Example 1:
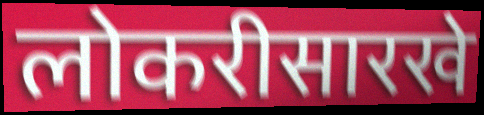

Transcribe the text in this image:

लोकरीसारखे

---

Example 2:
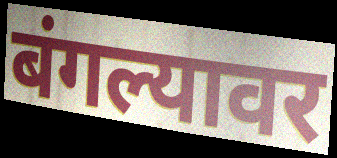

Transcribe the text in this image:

बंगल्यावर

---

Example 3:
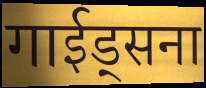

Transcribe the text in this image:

गाईड्सना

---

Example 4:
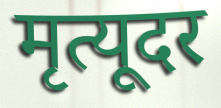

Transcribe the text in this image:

मृत्यूदर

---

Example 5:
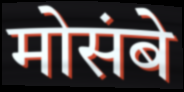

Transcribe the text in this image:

मोसंबे